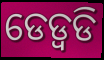
ଡେଡ୍ବଡି